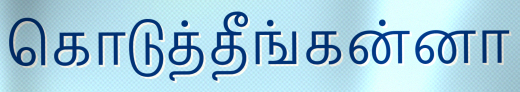
கொடுத்தீங்கன்னா